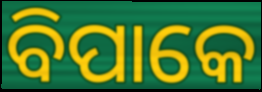
ବିପାକେ